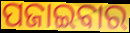
ପଜାଇବାର